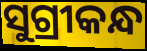
ସୁଗ୍ରୀକନ୍ଧ